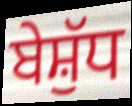
ਬੇਸ਼ੁੱਧ